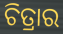
ଚିତ୍ରାର